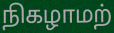
நிகழாமற்